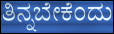
ತಿನ್ನಬೇಕೆಂದು